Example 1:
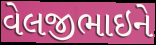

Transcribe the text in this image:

વેલજીભાઇને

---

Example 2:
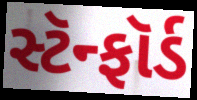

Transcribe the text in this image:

સ્ટૅન્ફૉર્ડ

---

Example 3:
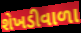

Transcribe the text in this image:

શેખડીવાળા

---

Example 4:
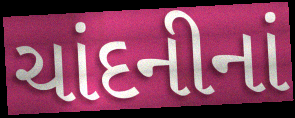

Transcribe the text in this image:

ચાંદનીનાં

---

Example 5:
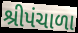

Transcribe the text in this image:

શ્રીપંચાળા